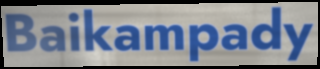
Baikampady